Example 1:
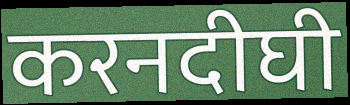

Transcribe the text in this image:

करनदीघी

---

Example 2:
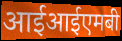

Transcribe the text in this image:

आईआईएमबी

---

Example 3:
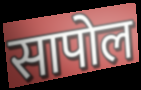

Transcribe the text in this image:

सापोल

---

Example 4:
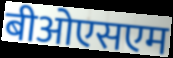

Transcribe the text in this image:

बीओएसएम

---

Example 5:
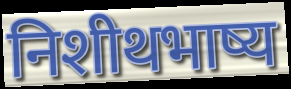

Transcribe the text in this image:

निशीथभाष्य